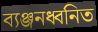
ব্যঞ্জনধ্বনিত